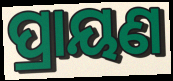
ପ୍ରାୟଣ